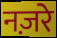
नज़रे